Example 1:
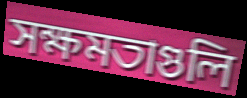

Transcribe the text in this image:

সক্ষমতাগুলি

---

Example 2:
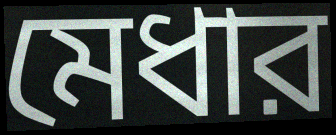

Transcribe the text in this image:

মেধার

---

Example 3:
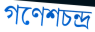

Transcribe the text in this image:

গণেশচন্দ্র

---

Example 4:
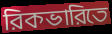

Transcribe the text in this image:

রিকভারিতে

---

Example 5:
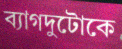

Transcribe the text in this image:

ব্যাগদুটোকে